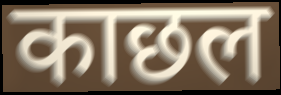
काछल